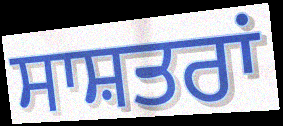
ਸਾਸ਼ਤਰਾਂ